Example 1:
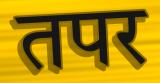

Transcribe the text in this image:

तपर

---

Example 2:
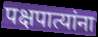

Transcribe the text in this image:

पक्षपात्यांना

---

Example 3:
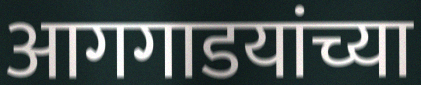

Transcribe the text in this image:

आगगाडयांच्या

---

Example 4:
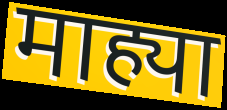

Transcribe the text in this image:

माह्या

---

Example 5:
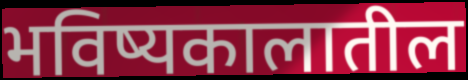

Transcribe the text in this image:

भविष्यकालातील